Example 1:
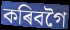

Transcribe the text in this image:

কৰিবগৈ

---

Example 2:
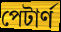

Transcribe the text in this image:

পেটাৰ্ণ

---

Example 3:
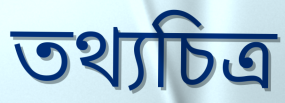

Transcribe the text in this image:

তথ্যচিত্ৰ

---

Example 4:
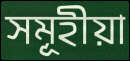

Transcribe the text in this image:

সমূহীয়া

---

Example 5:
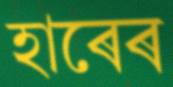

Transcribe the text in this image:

হাৰেৰ